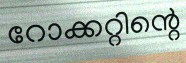
റോക്കറ്റിന്റെ